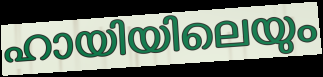
ഹായിയിലെയും